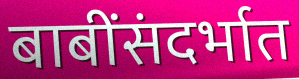
बाबींसंदर्भात